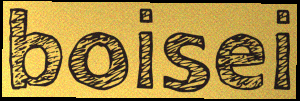
boisei